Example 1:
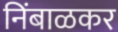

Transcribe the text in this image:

निंबाळकर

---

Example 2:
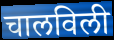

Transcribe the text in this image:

चालविली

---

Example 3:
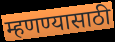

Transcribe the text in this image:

म्हणण्यासाठी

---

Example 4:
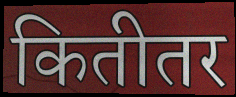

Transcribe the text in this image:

कितीतर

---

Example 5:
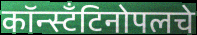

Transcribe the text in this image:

कॉन्स्टँटिनोपलचे